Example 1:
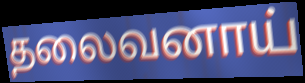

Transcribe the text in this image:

தலைவனாய்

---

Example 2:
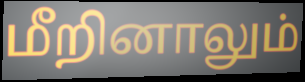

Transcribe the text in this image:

மீறினாலும்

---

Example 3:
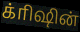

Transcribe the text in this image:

க்ரிஷின்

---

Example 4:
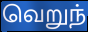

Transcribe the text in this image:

வெறுந்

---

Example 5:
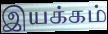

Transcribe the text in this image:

இயக்கம்